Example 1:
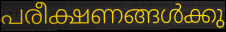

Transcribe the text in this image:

പരീക്ഷണങ്ങൾക്കു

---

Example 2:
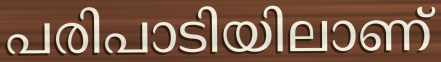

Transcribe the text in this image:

പരിപാടിയിലാണ്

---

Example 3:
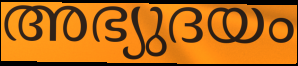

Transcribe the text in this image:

അഭ്യുദയം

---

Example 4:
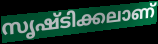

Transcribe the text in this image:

സൃഷ്ടിക്കലാണ്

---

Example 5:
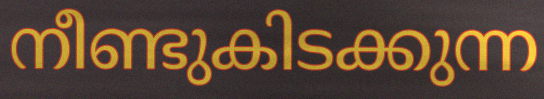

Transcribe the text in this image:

നീണ്ടുകിടക്കുന്ന